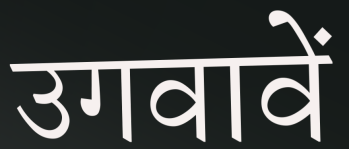
उगवावें